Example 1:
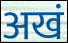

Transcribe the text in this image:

अखं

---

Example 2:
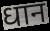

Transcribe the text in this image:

धान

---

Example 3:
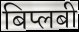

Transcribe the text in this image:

बिप्लबी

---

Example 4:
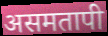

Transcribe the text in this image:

असमतापी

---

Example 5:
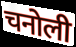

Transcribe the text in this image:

चनोली